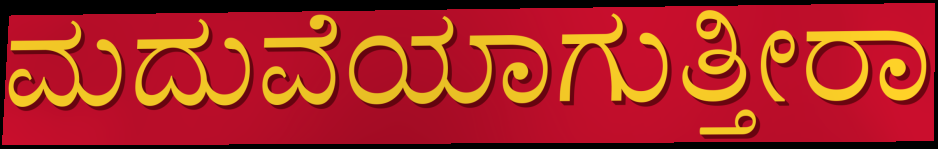
ಮದುವೆಯಾಗುತ್ತೀರಾ